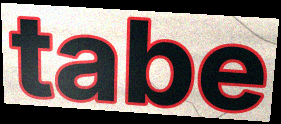
tabe